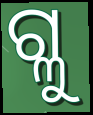
ଗ୍ଳୁ